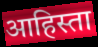
आहिस्ता